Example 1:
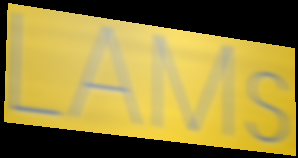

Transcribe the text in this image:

LAMs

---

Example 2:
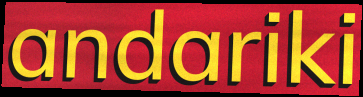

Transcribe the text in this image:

andariki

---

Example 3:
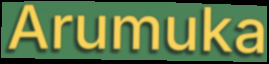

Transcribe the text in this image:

Arumuka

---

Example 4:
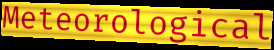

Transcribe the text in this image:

Meteorological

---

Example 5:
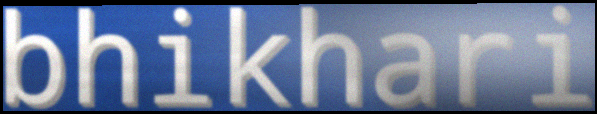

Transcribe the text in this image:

bhikhari